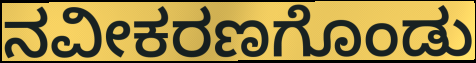
ನವೀಕರಣಗೊಂಡು